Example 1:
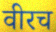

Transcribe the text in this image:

वीरच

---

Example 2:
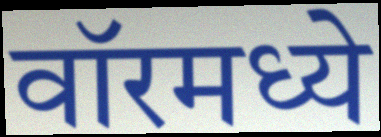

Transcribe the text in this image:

वॉरमध्ये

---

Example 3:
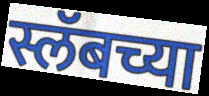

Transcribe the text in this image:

स्लॅबच्या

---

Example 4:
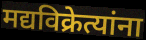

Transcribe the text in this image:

मद्यविक्रेत्यांना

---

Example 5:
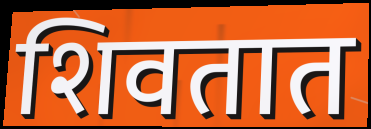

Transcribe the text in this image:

शिवतात